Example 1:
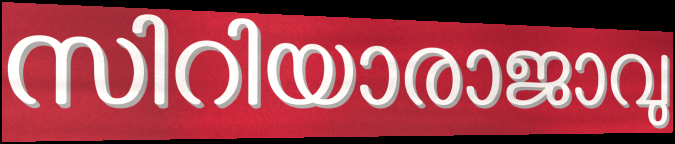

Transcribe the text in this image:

സിറിയാരാജാവു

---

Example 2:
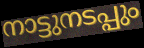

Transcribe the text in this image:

നാട്ടുനടപ്പും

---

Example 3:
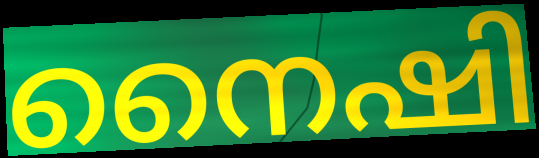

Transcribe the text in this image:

നൈഷി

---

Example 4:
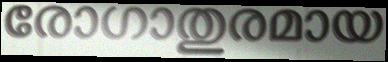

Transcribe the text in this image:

രോഗാതുരമായ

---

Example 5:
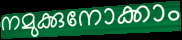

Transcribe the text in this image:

നമുക്കുനോക്കാം